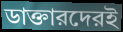
ডাক্তারদেরই